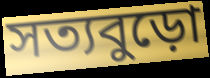
সত্যবুড়ো